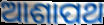
ଆଶାପଥ